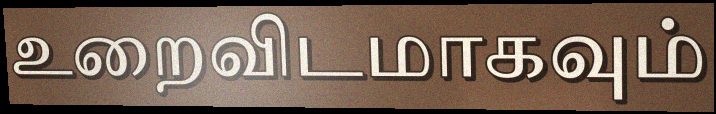
உறைவிடமாகவும்